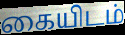
கையிடம்